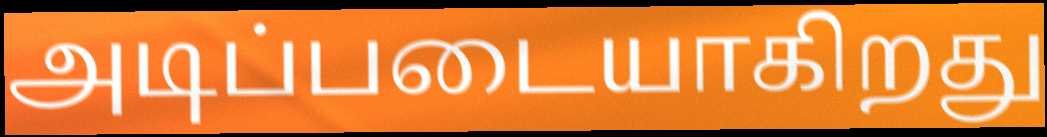
அடிப்படையாகிறது